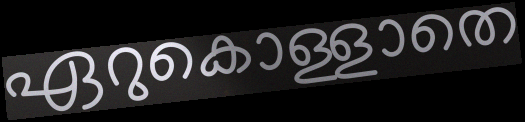
ഏറുകൊള്ളാതെ